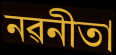
নৱনীতা